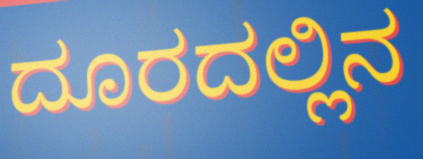
ದೂರದಲ್ಲಿನ